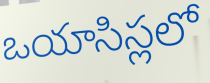
ఒయాసిస్లలో